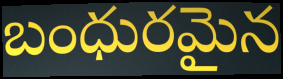
బంధురమైన